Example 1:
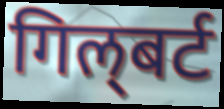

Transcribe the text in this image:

गिल्बर्ट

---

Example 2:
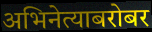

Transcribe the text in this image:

अभिनेत्याबरोबर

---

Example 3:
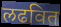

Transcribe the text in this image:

लढवित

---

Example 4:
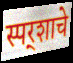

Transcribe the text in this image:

स्पर्शाचे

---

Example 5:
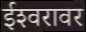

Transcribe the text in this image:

ईश्‍वरावर